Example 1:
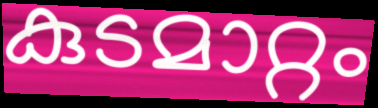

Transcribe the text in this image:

കുടമാറ്റം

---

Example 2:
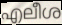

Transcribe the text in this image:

എലീശ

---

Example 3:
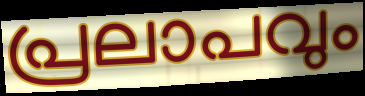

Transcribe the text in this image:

പ്രലാപവും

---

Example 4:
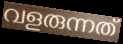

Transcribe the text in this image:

വളരുന്നത്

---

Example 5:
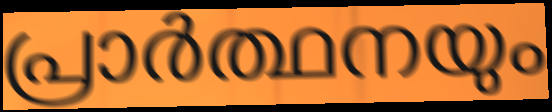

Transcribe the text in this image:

പ്രാർത്ഥനയും